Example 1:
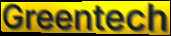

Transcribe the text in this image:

Greentech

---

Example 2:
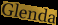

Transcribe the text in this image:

Glenda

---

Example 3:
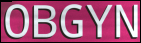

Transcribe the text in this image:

OBGYN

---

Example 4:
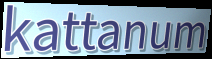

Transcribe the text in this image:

kattanum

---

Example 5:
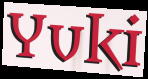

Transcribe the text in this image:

Yuki